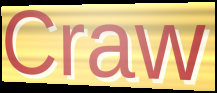
Craw